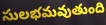
సులభమవుతుంది